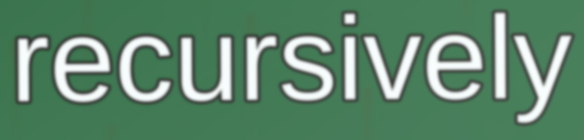
recursively